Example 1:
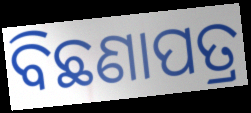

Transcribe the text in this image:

ବିଛଣାପତ୍ର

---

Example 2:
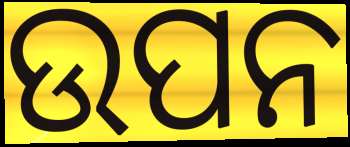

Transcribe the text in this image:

ଉପନ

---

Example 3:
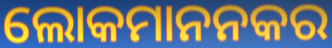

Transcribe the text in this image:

ଲୋକମାନନକର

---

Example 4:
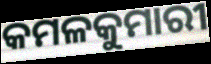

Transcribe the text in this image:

କମଳକୁମାରୀ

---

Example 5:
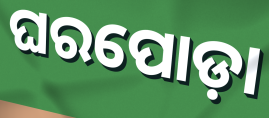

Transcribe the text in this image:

ଘରପୋଡ଼ା